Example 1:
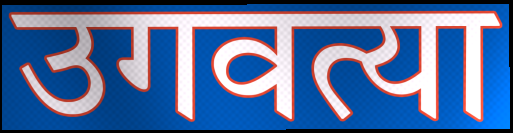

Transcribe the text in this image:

उगवत्या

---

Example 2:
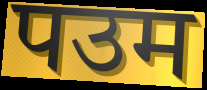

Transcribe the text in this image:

पउम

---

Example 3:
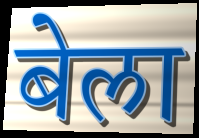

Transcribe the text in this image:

बेला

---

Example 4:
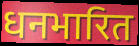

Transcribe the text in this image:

धनभारित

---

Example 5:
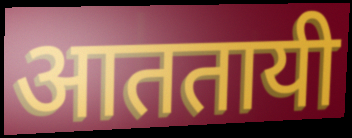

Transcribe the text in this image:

आततायी